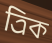
ত্রিক